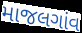
માજલગાંવ